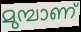
മുമ്പാണ്